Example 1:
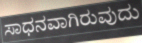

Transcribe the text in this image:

ಸಾಧನವಾಗಿರುವುದು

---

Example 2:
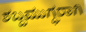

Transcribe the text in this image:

ಶಬ್ದಮುಗ್ಧರಾಗಿ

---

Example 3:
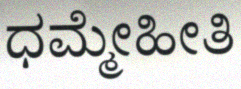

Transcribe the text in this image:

ಧಮ್ಮೇಹೀತಿ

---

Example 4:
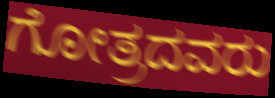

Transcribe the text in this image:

ಗೋತ್ರದವರು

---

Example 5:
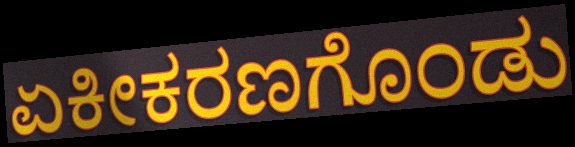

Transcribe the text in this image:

ಏಕೀಕರಣಗೊಂಡು